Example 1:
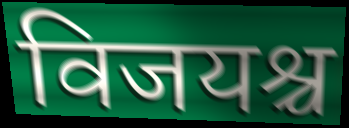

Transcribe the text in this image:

विजयश्च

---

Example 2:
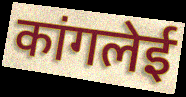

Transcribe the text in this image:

कांगलेई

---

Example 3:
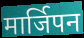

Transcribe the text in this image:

मार्जिपन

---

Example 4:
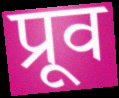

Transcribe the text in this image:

प्रूव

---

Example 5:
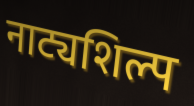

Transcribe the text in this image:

नाट्यशिल्प